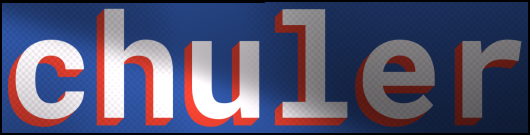
chuler